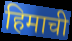
हिमाची